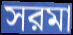
সরমা